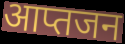
आप्तजन